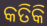
କତିକି